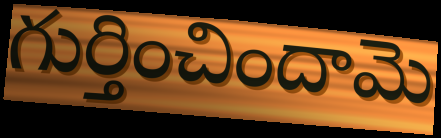
గుర్తించిందామె